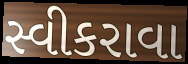
સ્વીકરાવા